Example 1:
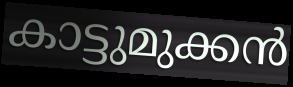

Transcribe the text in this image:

കാട്ടുമുക്കൻ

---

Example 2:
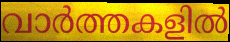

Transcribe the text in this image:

വാർത്തകളിൽ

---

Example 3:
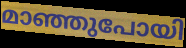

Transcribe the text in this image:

മാഞ്ഞുപോയി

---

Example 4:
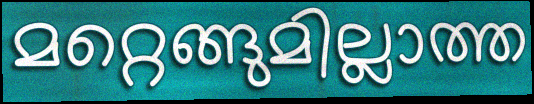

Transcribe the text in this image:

മറ്റെങ്ങുമില്ലാത്ത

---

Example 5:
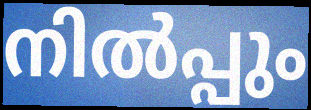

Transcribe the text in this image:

നിൽപ്പും